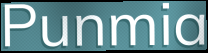
Punmia